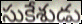
సుకేశుడు